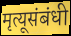
मृत्यूसंबंधी